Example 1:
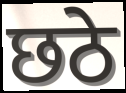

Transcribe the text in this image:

छठे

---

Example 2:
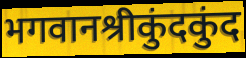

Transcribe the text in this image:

भगवानश्रीकुंदकुंद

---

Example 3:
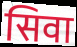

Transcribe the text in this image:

सिवा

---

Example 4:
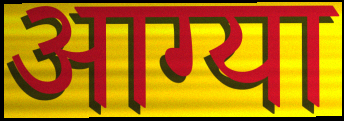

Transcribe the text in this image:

आग्या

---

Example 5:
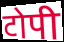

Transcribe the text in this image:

टोपी